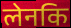
लेनकि